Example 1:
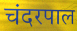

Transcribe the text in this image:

चंदरपाल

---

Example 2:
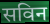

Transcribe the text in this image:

सविन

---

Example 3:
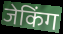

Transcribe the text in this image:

जेकिंग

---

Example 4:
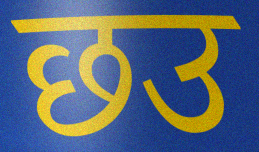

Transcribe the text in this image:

छउ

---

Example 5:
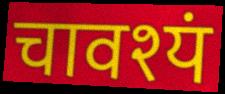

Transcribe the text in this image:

चावश्यं